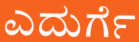
ಎದುರ್ಗೆ